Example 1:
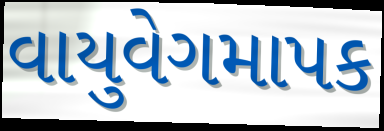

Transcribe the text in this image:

વાયુવેગમાપક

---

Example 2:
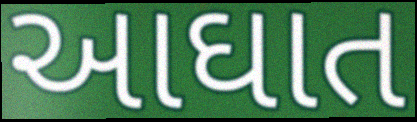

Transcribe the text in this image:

આઘાત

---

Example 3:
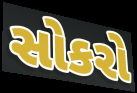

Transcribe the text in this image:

સોકરો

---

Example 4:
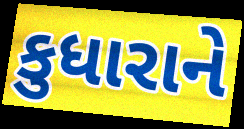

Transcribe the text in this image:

કુધારાને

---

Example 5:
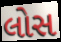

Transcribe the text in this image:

લોસ